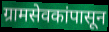
ग्रामसेवकांपासून